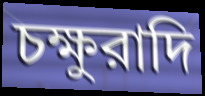
চক্ষুরাদি